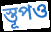
স্তূপও